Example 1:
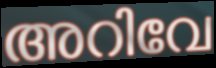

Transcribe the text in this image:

അറിവേ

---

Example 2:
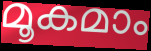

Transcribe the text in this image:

മൂകമാം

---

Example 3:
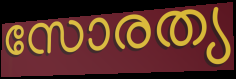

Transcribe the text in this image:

സോരത്യ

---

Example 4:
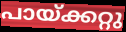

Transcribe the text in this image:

പായ്ക്കറ്റു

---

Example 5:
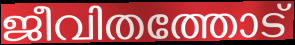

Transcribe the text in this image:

ജീവിതത്തോട്